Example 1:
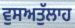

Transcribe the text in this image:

ਵੁਸਅਤੁੱਲਾਹ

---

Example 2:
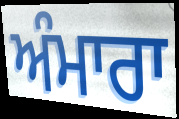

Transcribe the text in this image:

ਅੰਮਾਰਾ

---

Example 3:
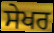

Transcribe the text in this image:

ਸੇਖਰ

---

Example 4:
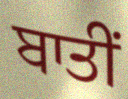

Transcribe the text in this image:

ਬਾਤੀਂ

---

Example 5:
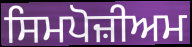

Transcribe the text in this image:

ਸਿਮਪੋਜ਼ੀਅਮ